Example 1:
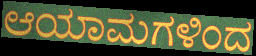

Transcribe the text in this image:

ಆಯಾಮಗಳಿಂದ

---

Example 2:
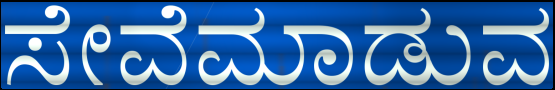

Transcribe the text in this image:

ಸೇವೆಮಾಡುವ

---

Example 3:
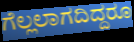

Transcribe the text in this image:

ಗೆಲ್ಲಲಾಗದಿದ್ದರೂ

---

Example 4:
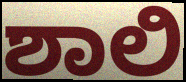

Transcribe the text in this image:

ಶಾಲಿ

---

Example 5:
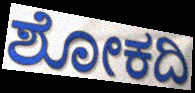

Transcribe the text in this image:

ಶೋಕದಿ